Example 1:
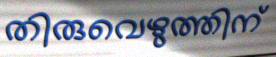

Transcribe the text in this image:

തിരുവെഴുത്തിന്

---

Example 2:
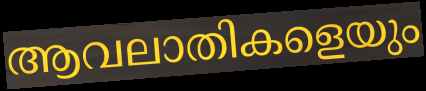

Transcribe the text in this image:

ആവലാതികളെയും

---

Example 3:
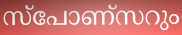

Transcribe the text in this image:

സ്പോണ്സറും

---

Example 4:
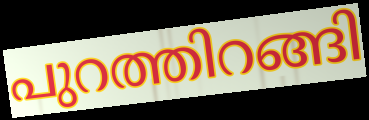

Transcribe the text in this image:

പുറത്തിറങ്ങി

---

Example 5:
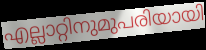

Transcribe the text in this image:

എല്ലാറ്റിനുമുപരിയായി